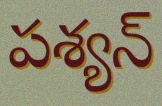
పశ్యన్